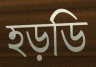
হড়ডি